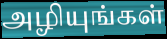
அழியுங்கள்